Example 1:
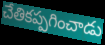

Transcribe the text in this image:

చేతికప్పగించాడు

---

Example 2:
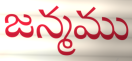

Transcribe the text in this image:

జన్మము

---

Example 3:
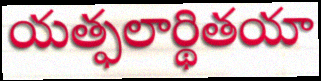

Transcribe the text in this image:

యత్ఫలార్థితయా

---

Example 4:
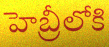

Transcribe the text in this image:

హెబ్రీలోకి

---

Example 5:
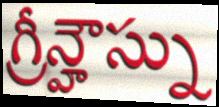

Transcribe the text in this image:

గ్రీన్హౌస్ను